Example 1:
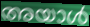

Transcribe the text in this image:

അയാൾ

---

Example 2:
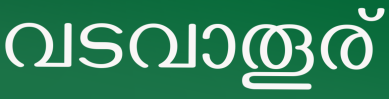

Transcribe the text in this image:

വടവാതൂര്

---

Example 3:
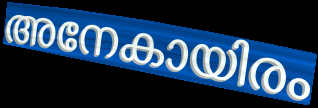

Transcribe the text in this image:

അനേകായിരം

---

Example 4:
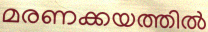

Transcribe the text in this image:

മരണക്കയത്തിൽ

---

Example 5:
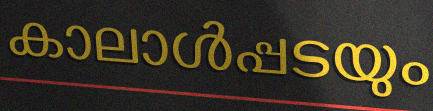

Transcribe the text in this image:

കാലാൾപ്പടയും